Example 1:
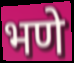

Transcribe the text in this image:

भणे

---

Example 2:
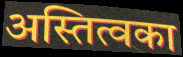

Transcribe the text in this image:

अस्तित्वका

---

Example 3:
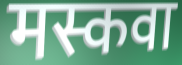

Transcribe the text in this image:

मस्कवा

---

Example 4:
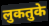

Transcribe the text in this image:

लुकतुके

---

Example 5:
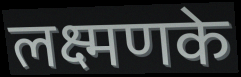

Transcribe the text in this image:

लक्ष्मणके